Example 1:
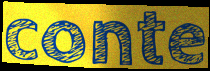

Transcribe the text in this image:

conte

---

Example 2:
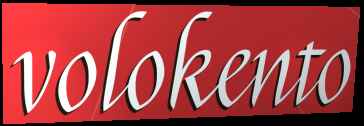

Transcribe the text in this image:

volokento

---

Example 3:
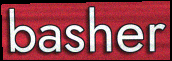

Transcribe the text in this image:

basher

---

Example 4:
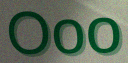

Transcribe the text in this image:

Ooo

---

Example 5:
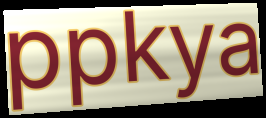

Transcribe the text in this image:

ppkya